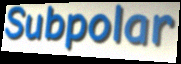
Subpolar